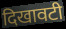
दिखावटी